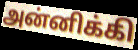
அன்னிக்கி